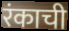
रंकाची